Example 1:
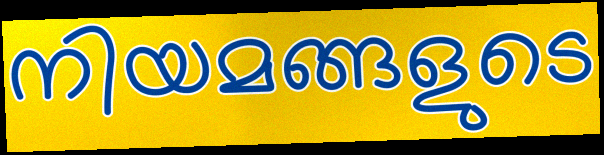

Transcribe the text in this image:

നിയമങ്ങളുടെ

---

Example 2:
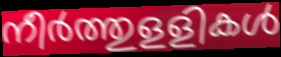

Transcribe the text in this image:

നീർത്തുളളികൾ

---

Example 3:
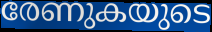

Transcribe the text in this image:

രേണുകയുടെ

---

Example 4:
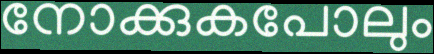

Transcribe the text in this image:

നോക്കുകപോലും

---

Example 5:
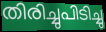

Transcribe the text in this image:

തിരിച്ചുപിടിച്ചു